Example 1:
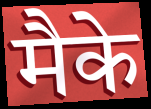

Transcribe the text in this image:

मैके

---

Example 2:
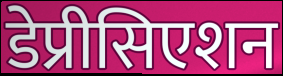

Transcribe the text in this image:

डेप्रीसिएशन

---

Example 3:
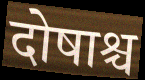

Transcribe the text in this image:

दोषाश्च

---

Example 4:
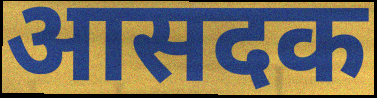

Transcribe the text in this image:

आसदक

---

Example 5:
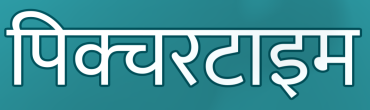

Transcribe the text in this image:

पिक्चरटाइम